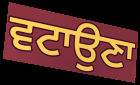
ਵਟਾਉਣਾ